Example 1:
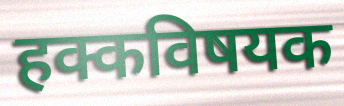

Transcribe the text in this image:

हक्कविषयक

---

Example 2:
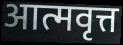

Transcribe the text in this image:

आत्मवृत्त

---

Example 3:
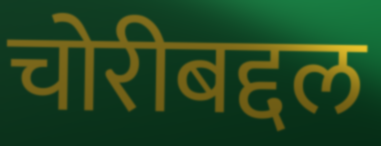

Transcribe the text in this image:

चोरीबद्दल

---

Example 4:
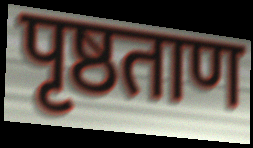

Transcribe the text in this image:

पृष्ठताण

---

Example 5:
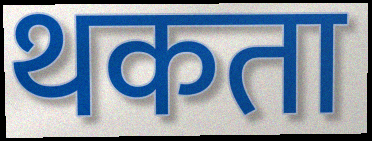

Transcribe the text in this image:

थकता